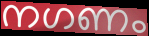
നഗണം